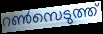
റൺസെടുത്ത്